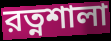
রত্নশালা